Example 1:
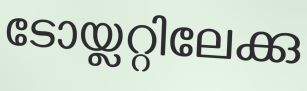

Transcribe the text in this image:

ടോയ്ലറ്റിലേക്കു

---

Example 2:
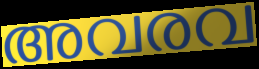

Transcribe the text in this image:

അവരവ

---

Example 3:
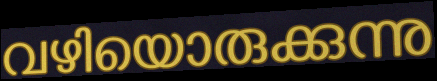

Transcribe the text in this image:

വഴിയൊരുക്കുന്നു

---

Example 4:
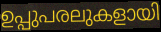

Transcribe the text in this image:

ഉപ്പുപരലുകളായി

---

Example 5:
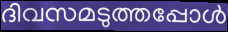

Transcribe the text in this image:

ദിവസമടുത്തപ്പോൾ